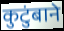
कुटुंबाने